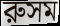
রুসম